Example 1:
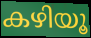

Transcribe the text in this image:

കഴിയൂ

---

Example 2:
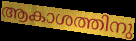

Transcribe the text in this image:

ആകാശത്തിനു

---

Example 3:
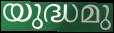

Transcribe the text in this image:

യുദ്ധമു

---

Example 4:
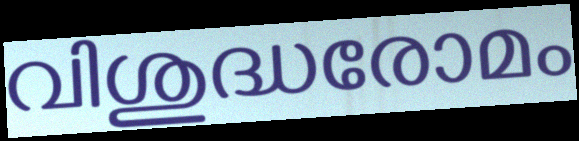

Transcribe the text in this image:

വിശുദ്ധരോമം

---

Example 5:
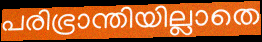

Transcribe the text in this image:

പരിഭ്രാന്തിയില്ലാതെ